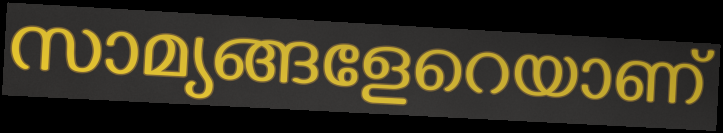
സാമ്യങ്ങളേറെയാണ്